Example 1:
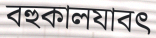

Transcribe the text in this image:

বহুকালযাবৎ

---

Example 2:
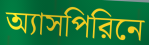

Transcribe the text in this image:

অ্যাসপিরিনে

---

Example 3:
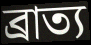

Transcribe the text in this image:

ব্রাত্য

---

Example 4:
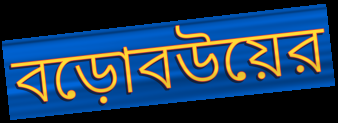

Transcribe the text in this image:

বড়োবউয়ের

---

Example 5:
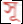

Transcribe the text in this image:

সূ